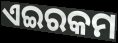
ଏଇରକମ